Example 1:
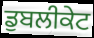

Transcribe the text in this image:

ਡੁਬਲੀਕੇਟ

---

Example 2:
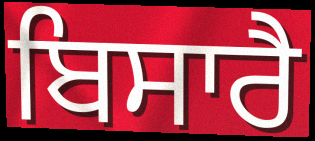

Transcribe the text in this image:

ਬਿਸਾਰੈ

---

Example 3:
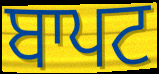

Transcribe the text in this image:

ਬਾਪਟ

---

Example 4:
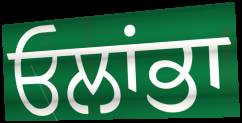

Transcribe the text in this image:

ਓਲਾਂਭਾ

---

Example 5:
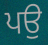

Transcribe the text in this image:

ਪਉ